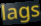
lags